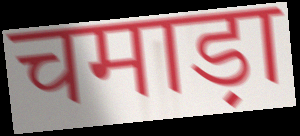
चमाड़ा